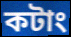
কটাং